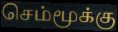
செம்மூக்கு